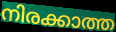
നിരക്കാത്ത